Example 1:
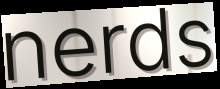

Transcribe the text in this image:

nerds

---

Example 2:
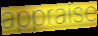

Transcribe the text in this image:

appraise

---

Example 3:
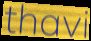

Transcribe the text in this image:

thavi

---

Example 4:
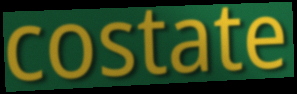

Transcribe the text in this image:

costate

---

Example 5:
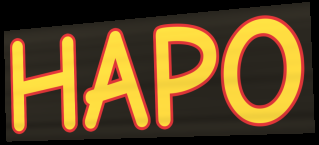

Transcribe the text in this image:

HAPO